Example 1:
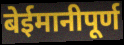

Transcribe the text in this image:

बेईमानीपूर्ण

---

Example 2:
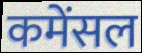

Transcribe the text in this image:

कमेंसल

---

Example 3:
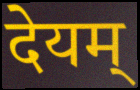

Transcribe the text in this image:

देयम्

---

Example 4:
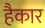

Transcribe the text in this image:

हैकार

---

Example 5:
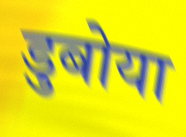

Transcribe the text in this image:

डुबोया